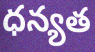
ధన్యత